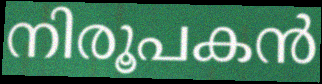
നിരൂപകൻ